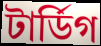
টার্ডিগ